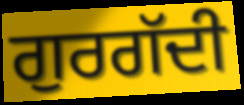
ਗੁਰਗੱਦੀ